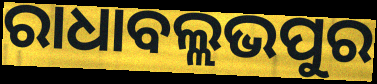
ରାଧାବଲ୍ଲଭପୁର